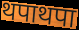
थपाथपा